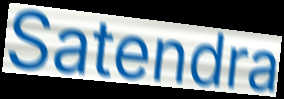
Satendra